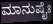
ಮಾನುಷೈಃ